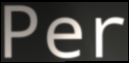
Per